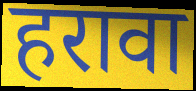
हरावा